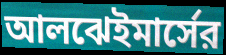
আলঝেইমার্সের